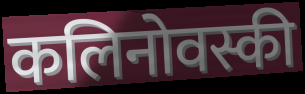
कलिनोवस्की